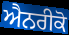
ਐਨਰੀਕੋ